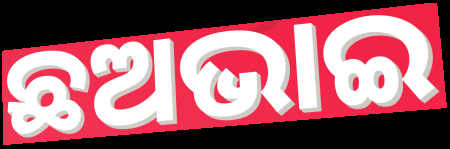
ଛଅଭାଇ